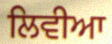
ਲਿਵੀਆ